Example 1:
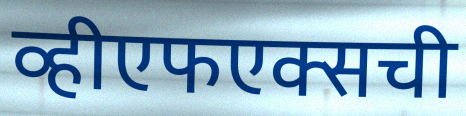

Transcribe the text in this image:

व्हीएफएक्सची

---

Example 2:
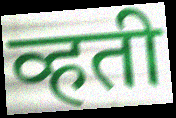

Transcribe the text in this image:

व्हती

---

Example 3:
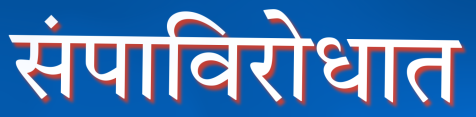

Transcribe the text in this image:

संपाविरोधात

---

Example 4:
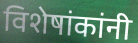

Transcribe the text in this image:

विशेषांकांनी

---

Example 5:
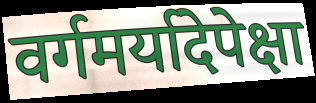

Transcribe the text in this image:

वर्गमर्यादेपेक्षा